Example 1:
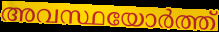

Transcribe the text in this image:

അവസ്ഥയോർത്ത്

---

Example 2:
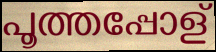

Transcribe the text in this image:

പൂത്തപ്പോള്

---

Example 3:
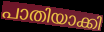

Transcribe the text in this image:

പാതിയാക്കി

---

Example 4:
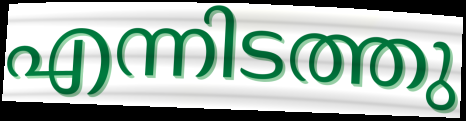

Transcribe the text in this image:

എന്നിടത്തു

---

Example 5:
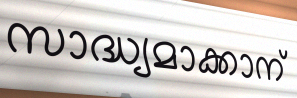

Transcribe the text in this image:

സാദ്ധ്യമാക്കാന്